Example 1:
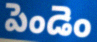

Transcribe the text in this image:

పెండెం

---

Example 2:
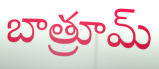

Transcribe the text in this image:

బాత్రూమ్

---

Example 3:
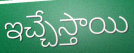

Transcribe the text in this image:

ఇచ్చేస్తాయి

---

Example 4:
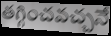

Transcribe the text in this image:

తగ్గించవచ్చనే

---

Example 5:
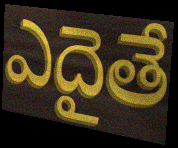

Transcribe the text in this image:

ఎదైతే